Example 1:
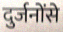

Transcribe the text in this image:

दुर्जनोंसे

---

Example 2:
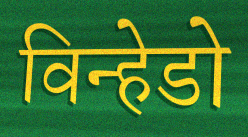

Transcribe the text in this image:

विन्हेडो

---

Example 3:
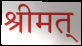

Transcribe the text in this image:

श्रीमत्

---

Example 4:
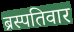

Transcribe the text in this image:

ब्रस्पतिवार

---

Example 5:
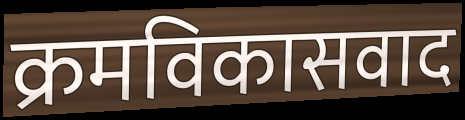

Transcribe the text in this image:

क्रमविकासवाद